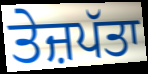
ਤੇਜ਼ਪੱਤਾ